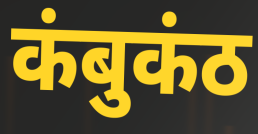
कंबुकंठ